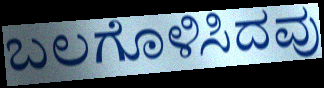
ಬಲಗೊಳಿಸಿದವು